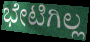
ಭೇಟಿಗಿಲ್ಲ